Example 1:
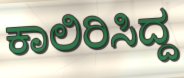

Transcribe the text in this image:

ಕಾಲಿರಿಸಿದ್ದ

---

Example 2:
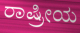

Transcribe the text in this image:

ರಾಷ್ರೀಯ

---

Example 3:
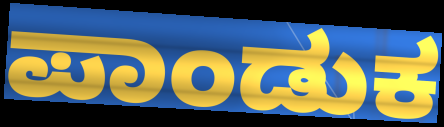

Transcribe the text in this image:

ಪಾಂಡುಕ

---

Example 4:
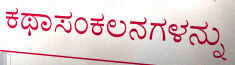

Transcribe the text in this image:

ಕಥಾಸಂಕಲನಗಳನ್ನು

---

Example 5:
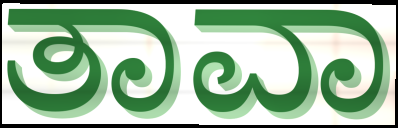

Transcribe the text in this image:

ತಾವಾ